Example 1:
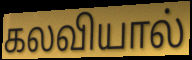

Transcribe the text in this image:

கலவியால்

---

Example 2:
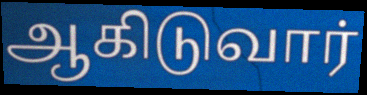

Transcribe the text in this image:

ஆகிடுவார்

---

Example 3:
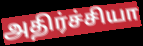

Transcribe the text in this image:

அதிர்ச்சியா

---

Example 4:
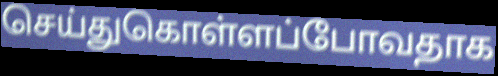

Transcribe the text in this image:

செய்துகொள்ளப்போவதாக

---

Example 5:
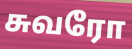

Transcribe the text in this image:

சுவரோ